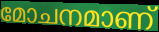
മോചനമാണ്